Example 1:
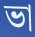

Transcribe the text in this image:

ভা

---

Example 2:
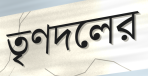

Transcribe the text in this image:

তৃণদলের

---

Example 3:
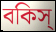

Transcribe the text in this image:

বকিস্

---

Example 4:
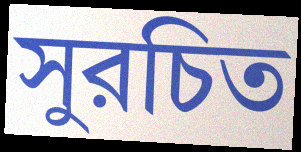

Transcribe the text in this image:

সুরচিত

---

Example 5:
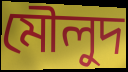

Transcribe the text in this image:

মৌলুদ